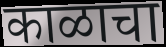
काळाचा